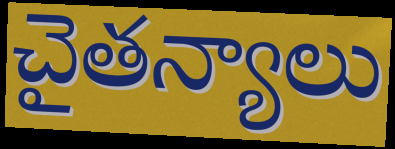
చైతన్యాలు